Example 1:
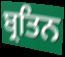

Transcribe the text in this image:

ਬ੍ਰਤਿਨ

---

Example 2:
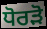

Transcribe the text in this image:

ਧੋਰੜੋ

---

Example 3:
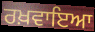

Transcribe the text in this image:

ਰਖ਼ਵਾਇਆ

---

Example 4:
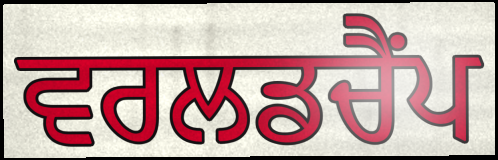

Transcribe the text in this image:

ਵਰਲਡਚੈਂਪ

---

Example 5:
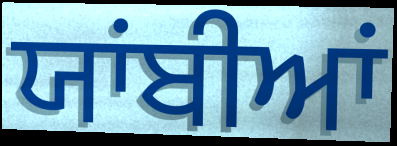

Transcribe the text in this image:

ਯਾਂਬੀਆਂ